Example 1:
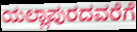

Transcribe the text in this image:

ಯಲ್ಲಾಪುರದವರೆಗೆ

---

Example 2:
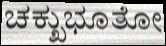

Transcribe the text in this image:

ಚಕ್ಖುಭೂತೋ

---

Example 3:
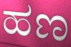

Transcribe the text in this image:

ಹಣ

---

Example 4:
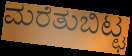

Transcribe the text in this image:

ಮರೆತುಬಿಟ್ಟ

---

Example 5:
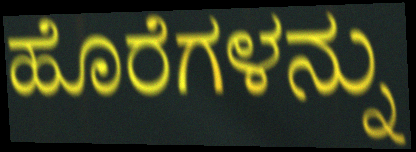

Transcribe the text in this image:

ಹೊರೆಗಳನ್ನು